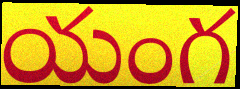
యంగ